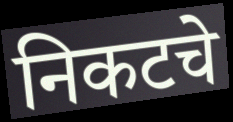
निकटचे